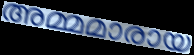
അമ്മമാരായ